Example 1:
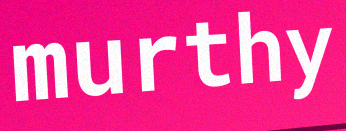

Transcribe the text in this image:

murthy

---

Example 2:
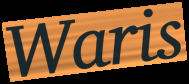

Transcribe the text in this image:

Waris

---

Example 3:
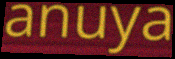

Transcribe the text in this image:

anuya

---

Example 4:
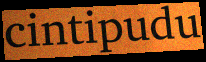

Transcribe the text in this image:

cintipudu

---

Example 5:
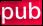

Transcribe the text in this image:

pub